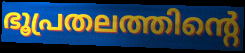
ഭൂപ്രതലത്തിന്റെ